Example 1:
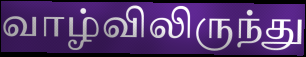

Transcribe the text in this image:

வாழ்விலிருந்து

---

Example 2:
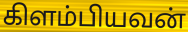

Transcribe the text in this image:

கிளம்பியவன்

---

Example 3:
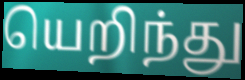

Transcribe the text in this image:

யெறிந்து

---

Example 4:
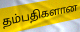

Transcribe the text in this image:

தம்பதிகளான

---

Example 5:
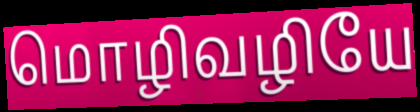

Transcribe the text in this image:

மொழிவழியே